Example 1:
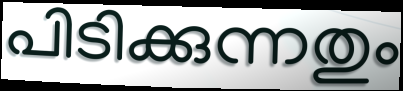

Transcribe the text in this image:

പിടിക്കുന്നതും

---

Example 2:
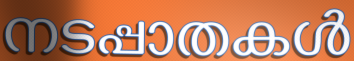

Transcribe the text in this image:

നടപ്പാതകൾ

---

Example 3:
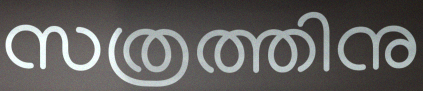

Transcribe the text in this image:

സത്രത്തിനു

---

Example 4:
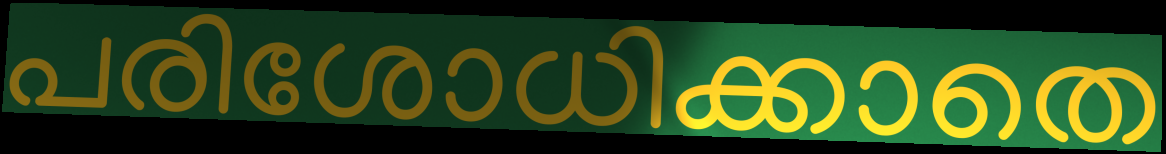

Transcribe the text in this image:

പരിശോധിക്കാതെ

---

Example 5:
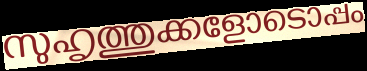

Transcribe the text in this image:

സുഹൃത്തുക്കളോടൊപ്പം